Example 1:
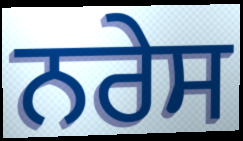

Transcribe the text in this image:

ਨਰੇਸ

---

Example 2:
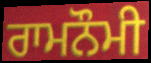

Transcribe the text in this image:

ਰਾਮਨੌਮੀ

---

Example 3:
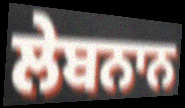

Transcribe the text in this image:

ਲੇਬਨਾਨ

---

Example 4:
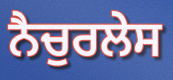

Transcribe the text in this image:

ਨੈਚੁਰਲੇਸ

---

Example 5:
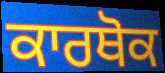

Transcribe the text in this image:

ਕਾਰਥੋਕ